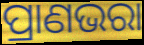
ପ୍ରାଣଭରା